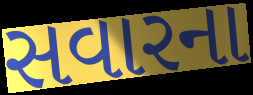
સવારના